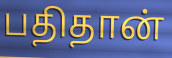
பதிதான்